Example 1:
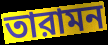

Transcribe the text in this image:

তারামন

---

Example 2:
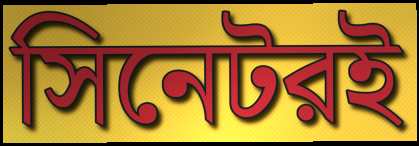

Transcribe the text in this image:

সিনেটরই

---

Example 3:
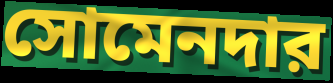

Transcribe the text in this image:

সোমেনদার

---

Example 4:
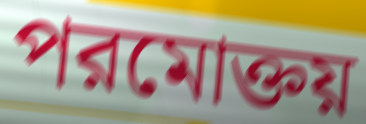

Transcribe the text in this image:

পরমোক্তয়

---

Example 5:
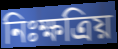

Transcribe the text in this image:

নিঃক্ষত্রিয়